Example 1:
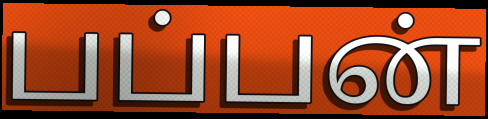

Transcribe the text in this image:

பப்பன்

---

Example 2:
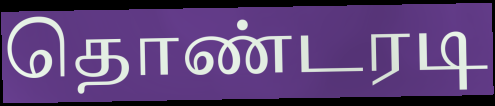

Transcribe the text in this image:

தொண்டரடி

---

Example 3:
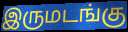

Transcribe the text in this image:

இருமடங்கு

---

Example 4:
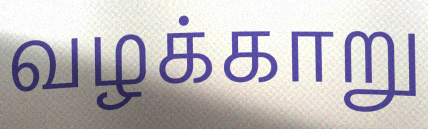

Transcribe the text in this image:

வழக்காறு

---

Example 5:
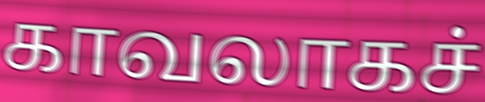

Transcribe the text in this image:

காவலாகச்